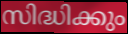
സിദ്ധിക്കും